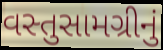
વસ્તુસામગ્રીનું